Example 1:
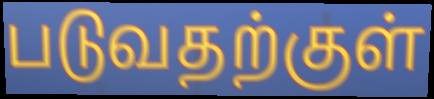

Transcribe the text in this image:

படுவதற்குள்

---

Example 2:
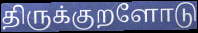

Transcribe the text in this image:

திருக்குறளோடு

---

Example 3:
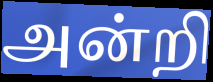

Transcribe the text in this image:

அன்றி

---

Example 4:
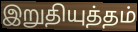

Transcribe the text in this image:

இறுதியுத்தம்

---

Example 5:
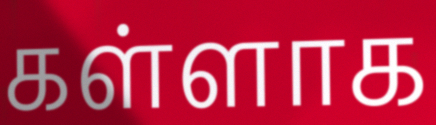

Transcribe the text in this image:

கள்ளாக